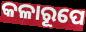
କଳାରୂପେ